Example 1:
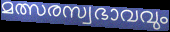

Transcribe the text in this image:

മത്സരസ്വഭാവവും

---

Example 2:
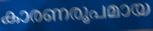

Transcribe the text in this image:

കാരണരൂപമായ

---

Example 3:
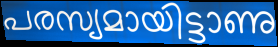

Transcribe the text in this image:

പരസ്യമായിട്ടാണു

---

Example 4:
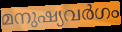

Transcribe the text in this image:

മനുഷ്യവർഗം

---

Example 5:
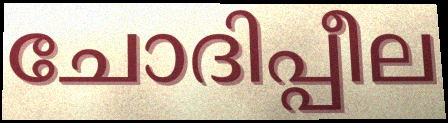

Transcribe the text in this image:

ചോദിപ്പീല